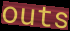
outs